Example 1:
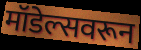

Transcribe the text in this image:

मॉडेल्सवरून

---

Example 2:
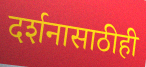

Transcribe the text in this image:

दर्शनासाठीही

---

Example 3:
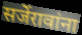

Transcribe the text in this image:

सर्जेरावांना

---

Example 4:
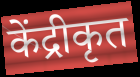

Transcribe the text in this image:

केंद्रीकृत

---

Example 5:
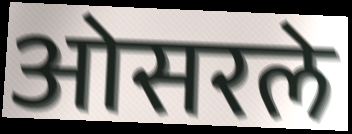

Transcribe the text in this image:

ओसरले